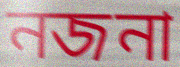
নজনা